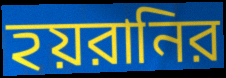
হয়রানির